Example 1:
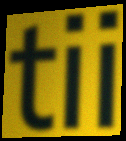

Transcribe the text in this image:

tii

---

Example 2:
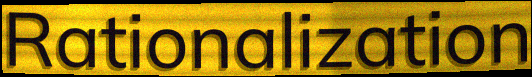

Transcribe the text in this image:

Rationalization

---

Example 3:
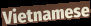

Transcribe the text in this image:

Vietnamese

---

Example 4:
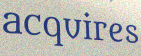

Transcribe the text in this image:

acquires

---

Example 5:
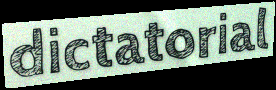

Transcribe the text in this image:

dictatorial